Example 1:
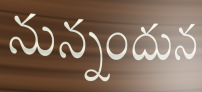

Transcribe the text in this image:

నున్నందున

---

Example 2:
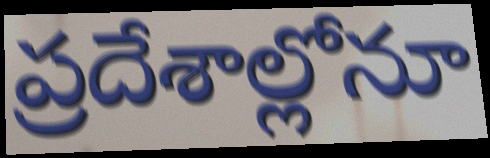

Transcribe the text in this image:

ప్రదేశాల్లోనూ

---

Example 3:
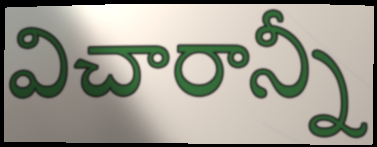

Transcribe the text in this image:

విచారాన్నీ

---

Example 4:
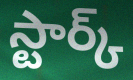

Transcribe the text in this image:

స్టార్క్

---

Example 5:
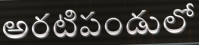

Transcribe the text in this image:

అరటిపండులో